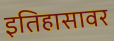
इतिहासावर